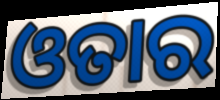
ଓତାର